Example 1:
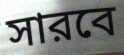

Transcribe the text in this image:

সারবে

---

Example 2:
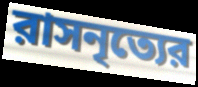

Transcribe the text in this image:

রাসনৃত্যের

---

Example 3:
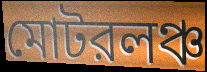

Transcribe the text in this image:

মোটরলঞ্চ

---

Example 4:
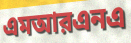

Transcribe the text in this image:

এমআরএনএ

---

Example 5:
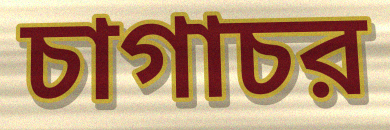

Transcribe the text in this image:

চাগাচর